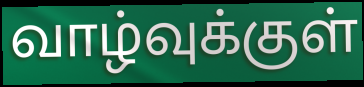
வாழ்வுக்குள்